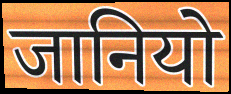
जानियो